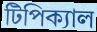
টিপিক্যাল